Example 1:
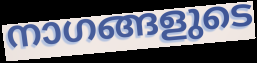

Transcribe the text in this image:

നാഗങ്ങളുടെ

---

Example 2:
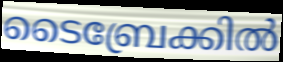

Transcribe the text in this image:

ടൈബ്രേക്കിൽ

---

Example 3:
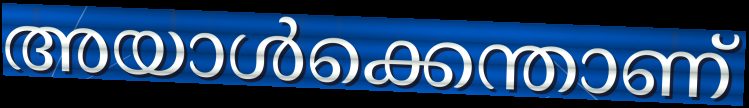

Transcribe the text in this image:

അയാൾക്കെന്താണ്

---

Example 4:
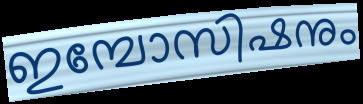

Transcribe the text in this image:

ഇമ്പോസിഷനും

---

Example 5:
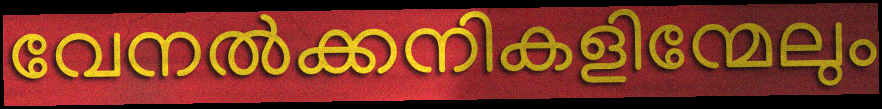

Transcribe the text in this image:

വേനൽക്കനികളിന്മേലും